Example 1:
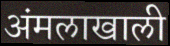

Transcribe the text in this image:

अंमलाखाली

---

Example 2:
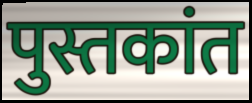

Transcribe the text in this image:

पुस्तकांत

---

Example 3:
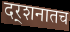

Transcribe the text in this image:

दर्शनातच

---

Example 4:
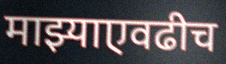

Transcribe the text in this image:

माझ्याएवढीच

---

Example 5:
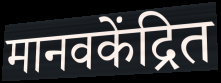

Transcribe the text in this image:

मानवकेंद्रित